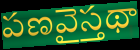
పణవైస్తథా